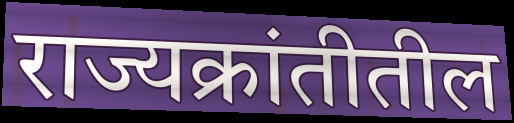
राज्यक्रांतीतील